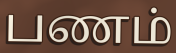
பணம்